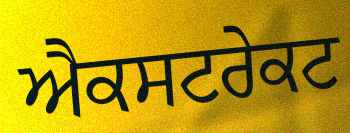
ਐਕਸਟਰੇਕਟ